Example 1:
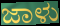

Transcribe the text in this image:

ಜಾಳು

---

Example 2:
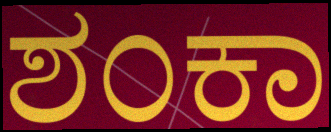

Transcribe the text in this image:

ಶಂಕಾ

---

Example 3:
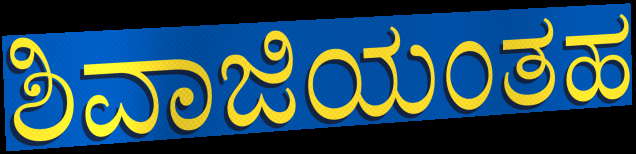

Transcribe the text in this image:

ಶಿವಾಜಿಯಂತಹ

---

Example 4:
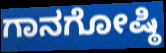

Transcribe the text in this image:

ಗಾನಗೋಷ್ಠಿ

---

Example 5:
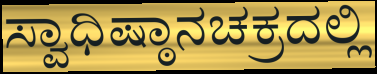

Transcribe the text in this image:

ಸ್ವಾಧಿಷ್ಠಾನಚಕ್ರದಲ್ಲಿ